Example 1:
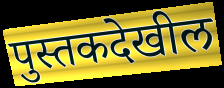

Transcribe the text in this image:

पुस्तकदेखील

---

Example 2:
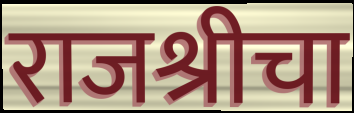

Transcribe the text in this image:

राजश्रीचा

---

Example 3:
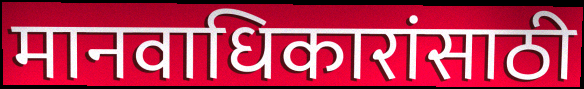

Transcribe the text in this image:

मानवाधिकारांसाठी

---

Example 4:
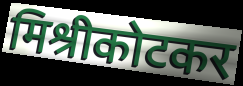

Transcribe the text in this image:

मिश्रीकोटकर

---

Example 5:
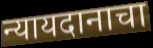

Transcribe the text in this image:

न्यायदानाचा